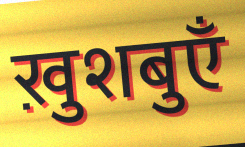
ख़ुशबुएँ